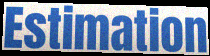
Estimation